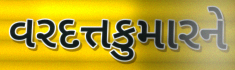
વરદત્તકુમારને